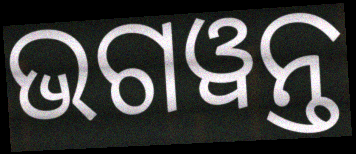
ଭଗୱନ୍ତ